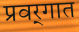
प्रवर्गात